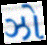
ઝો